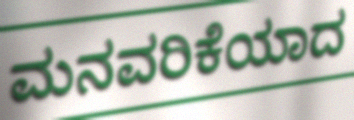
ಮನವರಿಕೆಯಾದ